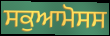
ਸਕੁਆਮੋਸਸ